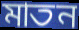
মাতন